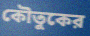
কৌতুকের